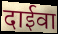
दाईवा